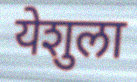
येशुला